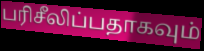
பரிசீலிப்பதாகவும்